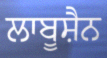
ਲਾਬੂਸ਼ੈਨ